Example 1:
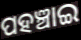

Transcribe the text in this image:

ପହଞ୍ଚାଇ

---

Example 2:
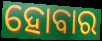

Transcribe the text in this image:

ହୋବାର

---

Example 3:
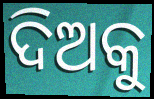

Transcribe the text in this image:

ଦିଅକୁ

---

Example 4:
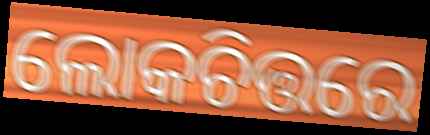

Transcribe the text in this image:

ଲୋକଚିତ୍ତରେ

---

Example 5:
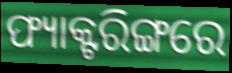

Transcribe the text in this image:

ଫ୍ୟାକ୍ଟରିଙ୍ଗରେ